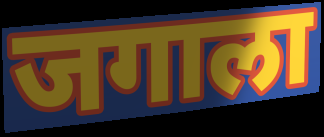
जगाला